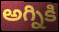
అగ్నికి